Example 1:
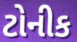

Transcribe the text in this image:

ટોનીક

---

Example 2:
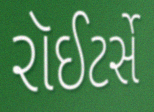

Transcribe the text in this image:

રૉઈટર્સે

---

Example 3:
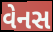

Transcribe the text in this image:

વેનસ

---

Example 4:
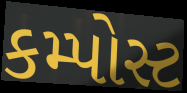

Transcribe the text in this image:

કમ્પોસ્ટ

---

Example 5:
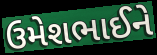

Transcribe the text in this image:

ઉમેશભાઈને